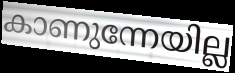
കാണുന്നേയില്ല